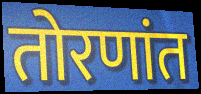
तोरणांत